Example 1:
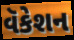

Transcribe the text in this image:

વૅકેશન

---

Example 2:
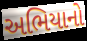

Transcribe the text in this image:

અભિયાનો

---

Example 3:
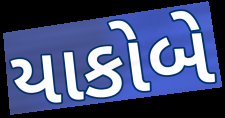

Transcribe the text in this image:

યાકોબે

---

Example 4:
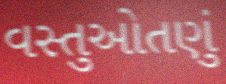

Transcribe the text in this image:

વસ્તુઓતણું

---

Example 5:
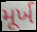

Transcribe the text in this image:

મૂર્ખ